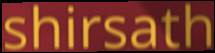
shirsath